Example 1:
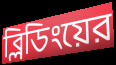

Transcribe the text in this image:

ব্লিডিংয়ের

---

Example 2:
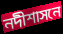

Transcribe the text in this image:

নদীশাসনে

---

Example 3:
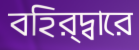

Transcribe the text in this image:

বহির্‌দ্বারে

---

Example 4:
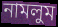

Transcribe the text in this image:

নামলুম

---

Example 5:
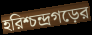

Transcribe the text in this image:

হরিশ্চন্দ্রগড়ের